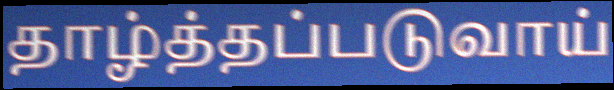
தாழ்த்தப்படுவாய்